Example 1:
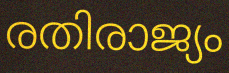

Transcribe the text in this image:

രതിരാജ്യം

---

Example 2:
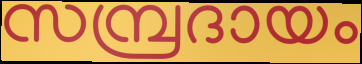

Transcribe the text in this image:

സമ്പ്രദായം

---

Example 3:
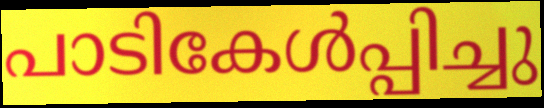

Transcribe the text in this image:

പാടികേൾപ്പിച്ചു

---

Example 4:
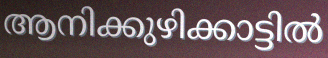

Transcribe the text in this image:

ആനിക്കുഴിക്കാട്ടിൽ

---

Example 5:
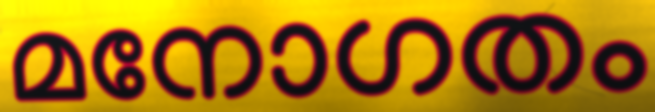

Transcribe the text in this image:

മനോഗതം